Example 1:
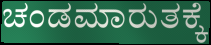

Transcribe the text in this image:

ಚಂಡಮಾರುತಕ್ಕೆ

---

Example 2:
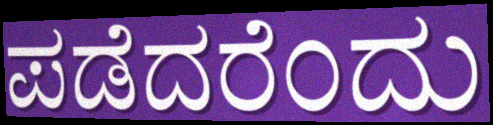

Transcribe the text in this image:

ಪಡೆದರೆಂದು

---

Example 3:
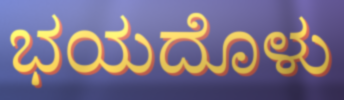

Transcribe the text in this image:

ಭಯದೊಳು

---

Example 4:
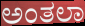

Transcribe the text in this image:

ಅಂತಲಾ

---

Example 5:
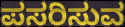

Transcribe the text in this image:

ಪಸರಿಸುವ